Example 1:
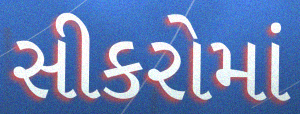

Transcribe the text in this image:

સીકરોમાં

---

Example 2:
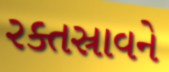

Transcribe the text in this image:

રક્તસ્રાવને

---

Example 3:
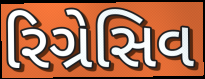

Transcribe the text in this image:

રિગ્રેસિવ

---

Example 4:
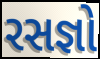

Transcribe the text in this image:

રસજ્ઞો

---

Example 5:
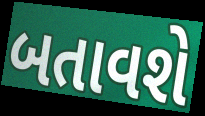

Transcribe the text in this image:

બતાવશે